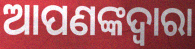
ଆପଣଙ୍କଦ୍ଵାରା